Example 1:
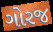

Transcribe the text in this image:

ગોરજ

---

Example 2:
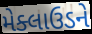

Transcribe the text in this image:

મેક્લાઉડને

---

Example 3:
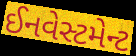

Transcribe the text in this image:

ઈનવેસ્ટમેન્ટ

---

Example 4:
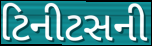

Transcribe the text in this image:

ટિનીટસની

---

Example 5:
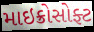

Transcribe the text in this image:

માઇક્રોસોફ્ટ